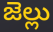
జెల్లు